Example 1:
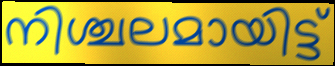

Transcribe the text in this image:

നിശ്ചലമായിട്ട്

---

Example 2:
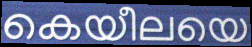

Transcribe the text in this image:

കെയീലയെ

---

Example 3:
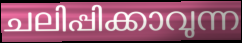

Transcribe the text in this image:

ചലിപ്പിക്കാവുന്ന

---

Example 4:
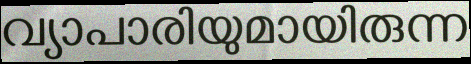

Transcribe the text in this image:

വ്യാപാരിയുമായിരുന്ന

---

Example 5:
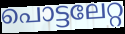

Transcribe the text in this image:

പൊട്ടലേറ്റ